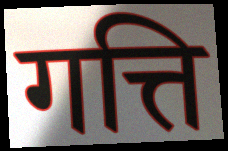
गत्ति